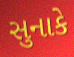
સુનાકે